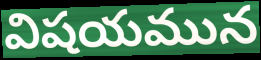
విషయమున